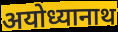
अयोध्यानाथ